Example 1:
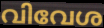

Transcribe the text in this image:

വിവേശ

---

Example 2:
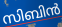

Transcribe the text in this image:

സിബിൻ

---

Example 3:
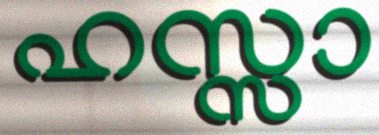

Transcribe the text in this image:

ഹസ്സാ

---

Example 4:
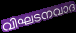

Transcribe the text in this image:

വിഘടനവാദ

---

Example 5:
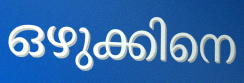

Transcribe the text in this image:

ഒഴുക്കിനെ